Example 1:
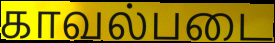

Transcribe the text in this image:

காவல்படை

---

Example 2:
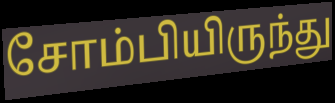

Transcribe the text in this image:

சோம்பியிருந்து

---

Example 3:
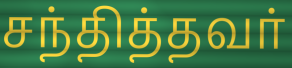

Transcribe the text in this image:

சந்தித்தவர்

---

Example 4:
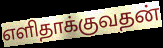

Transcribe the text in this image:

எளிதாக்குவதன்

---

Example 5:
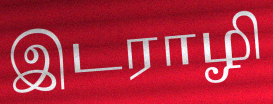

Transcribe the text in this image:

இடராழி